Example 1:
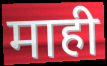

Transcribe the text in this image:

माही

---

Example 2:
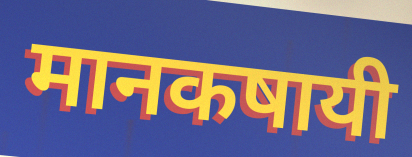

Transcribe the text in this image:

मानकषायी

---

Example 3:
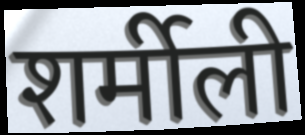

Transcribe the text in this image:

शर्मीली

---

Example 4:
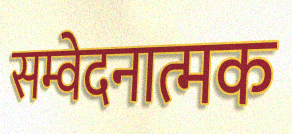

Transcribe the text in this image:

सम्वेदनात्मक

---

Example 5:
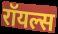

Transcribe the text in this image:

रॉयल्स